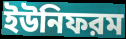
ইউনিফরম